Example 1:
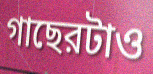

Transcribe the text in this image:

গাছেরটাও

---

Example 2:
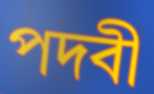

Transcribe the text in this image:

পদবী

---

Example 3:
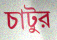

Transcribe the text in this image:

চাটুর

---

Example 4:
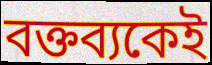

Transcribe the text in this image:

বক্তব্যকেই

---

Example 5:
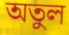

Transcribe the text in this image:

অতুল